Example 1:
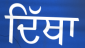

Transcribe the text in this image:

ਦਿੱਥਾ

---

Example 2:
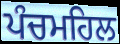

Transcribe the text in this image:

ਪੰਚਮਹਿਲ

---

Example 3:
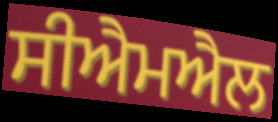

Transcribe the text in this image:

ਸੀਐਮਐਲ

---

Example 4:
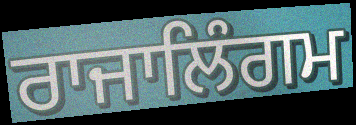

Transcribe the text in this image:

ਰਾਜਾਲਿੰਗਮ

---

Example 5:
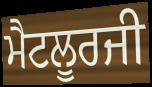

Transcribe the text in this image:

ਮੈਟਲੂਰਜੀ